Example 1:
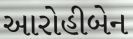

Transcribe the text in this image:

આરોહીબેન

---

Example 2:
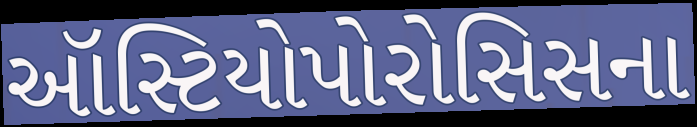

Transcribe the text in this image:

ઑસ્ટિયોપોરોસિસના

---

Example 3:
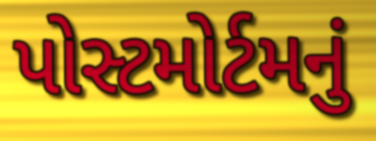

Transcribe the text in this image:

પોસ્ટમોર્ટમનું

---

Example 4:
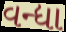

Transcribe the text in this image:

વન્દ્યા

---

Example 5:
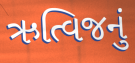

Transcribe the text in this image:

ઋત્વિજનું